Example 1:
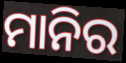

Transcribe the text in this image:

ମାନିର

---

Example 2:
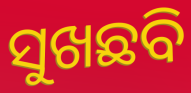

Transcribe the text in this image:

ସୁଖଛବି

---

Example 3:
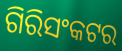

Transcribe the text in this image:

ଗିରିସଂକଟର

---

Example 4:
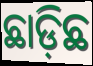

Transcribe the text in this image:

ଛାଡ଼ିଛ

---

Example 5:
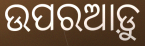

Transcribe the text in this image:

ଉପରଆଡ଼ୁ